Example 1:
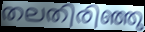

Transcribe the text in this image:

തലതിരിഞ്ഞു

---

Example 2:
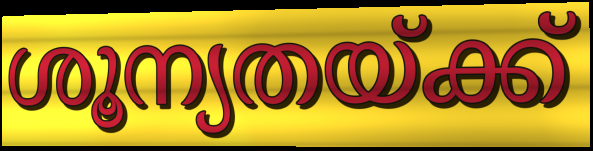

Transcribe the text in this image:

ശൂന്യതയ്ക്ക്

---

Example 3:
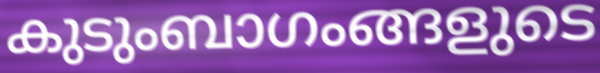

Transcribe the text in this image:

കുടുംബാഗംങ്ങളുടെ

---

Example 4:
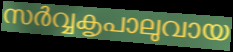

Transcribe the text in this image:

സർവ്വകൃപാലുവായ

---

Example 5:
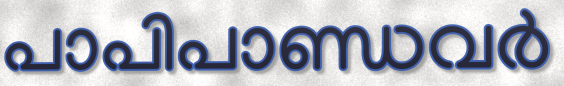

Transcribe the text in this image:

പാപിപാണ്ഡവർ